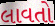
લાવતો